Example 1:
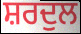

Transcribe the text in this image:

ਸ਼ਰਦੁਲ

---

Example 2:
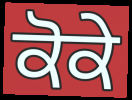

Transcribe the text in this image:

ਕੋਕੇ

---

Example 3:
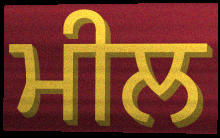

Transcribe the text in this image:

ਮੀਲ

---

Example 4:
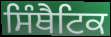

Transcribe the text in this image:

ਸਿੰਥੈਟਿਕ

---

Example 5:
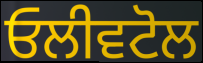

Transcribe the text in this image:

ਓਲੀਵਟੋਲ